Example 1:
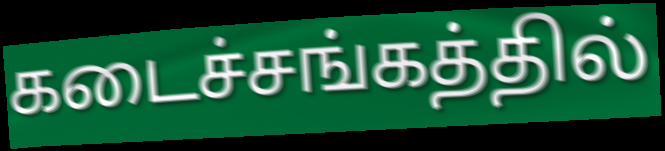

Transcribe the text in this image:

கடைச்சங்கத்தில்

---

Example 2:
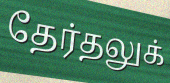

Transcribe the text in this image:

தேர்தலுக்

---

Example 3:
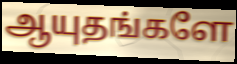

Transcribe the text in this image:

ஆயுதங்களே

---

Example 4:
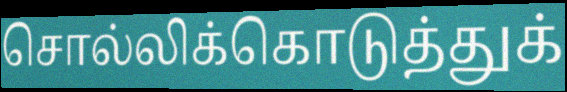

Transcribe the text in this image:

சொல்லிக்கொடுத்துக்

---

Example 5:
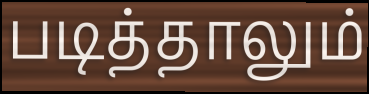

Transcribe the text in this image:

படித்தாலும்